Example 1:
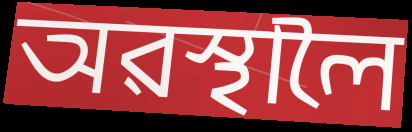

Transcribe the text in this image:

অৱস্থালৈ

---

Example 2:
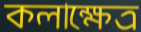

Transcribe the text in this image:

কলাক্ষেত্ৰ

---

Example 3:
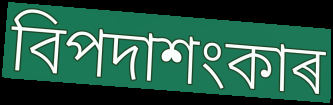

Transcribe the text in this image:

বিপদাশংকাৰ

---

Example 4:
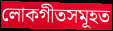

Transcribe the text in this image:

লোকগীতসমূহত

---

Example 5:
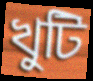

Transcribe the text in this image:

খুটি